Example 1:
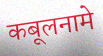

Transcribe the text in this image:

कबूलनामे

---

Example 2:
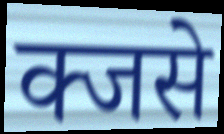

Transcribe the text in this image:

क्जसे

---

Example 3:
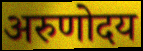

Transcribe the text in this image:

अरुणोदय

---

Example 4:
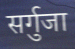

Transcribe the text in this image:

सर्गुजा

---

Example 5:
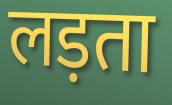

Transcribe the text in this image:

लड़ता